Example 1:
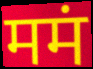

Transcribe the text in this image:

ममं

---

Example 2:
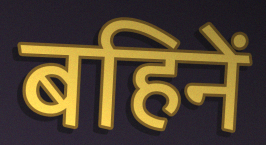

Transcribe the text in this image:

बहिनें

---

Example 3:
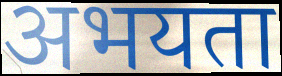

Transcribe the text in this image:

अभयता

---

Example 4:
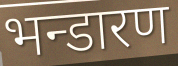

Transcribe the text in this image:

भन्डारण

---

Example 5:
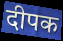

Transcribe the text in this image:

दीपक